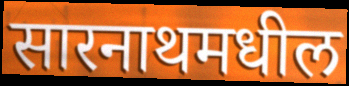
सारनाथमधील